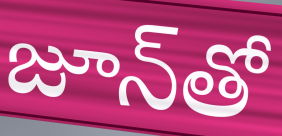
జూన్‌తో